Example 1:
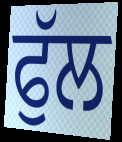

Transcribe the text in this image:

ਫੁੱਲ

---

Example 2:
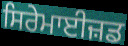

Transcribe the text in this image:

ਸਿਰੇਮਾਈਜ਼ਡ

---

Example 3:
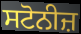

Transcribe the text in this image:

ਸਟੋਨੀਜ਼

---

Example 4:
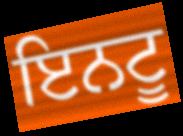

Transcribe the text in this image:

ਇਨਟੂ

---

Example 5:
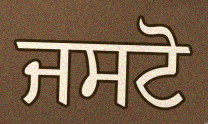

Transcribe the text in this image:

ਜਸਟੋ